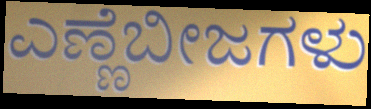
ಎಣ್ಣೆಬೀಜಗಳು